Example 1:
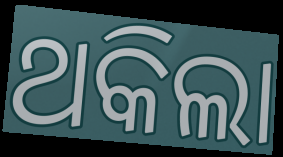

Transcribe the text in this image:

ଥକିଲା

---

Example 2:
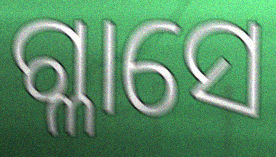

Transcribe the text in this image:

ଗ୍ଳାସେ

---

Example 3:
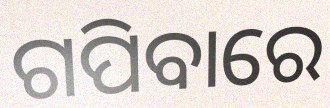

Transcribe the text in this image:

ଗପିବାରେ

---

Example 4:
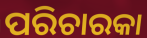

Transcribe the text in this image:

ପରିଚାରକା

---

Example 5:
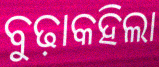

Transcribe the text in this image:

ବୁଢ଼ାକହିଲା